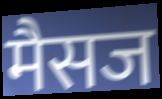
मैसज